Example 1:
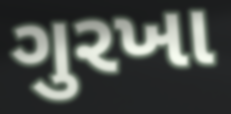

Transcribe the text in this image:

ગુરખા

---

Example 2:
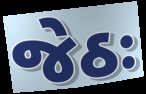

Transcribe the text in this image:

જેઠઃ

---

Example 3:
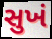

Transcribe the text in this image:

સુખં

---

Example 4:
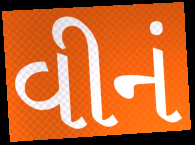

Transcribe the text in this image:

વીનં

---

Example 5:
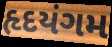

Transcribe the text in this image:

હૃદયંગમ